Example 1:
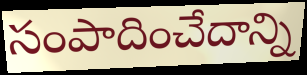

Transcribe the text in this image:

సంపాదించేదాన్ని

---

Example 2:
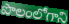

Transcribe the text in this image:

పొలంలోగాని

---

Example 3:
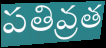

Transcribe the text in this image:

పతివ్రత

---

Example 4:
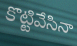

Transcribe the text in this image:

కొట్టివేసినా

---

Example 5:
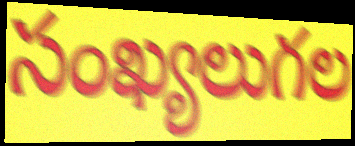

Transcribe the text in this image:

సంఖ్యలుగల